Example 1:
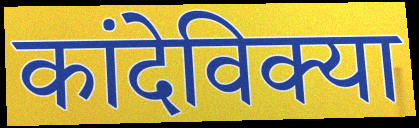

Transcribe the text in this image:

कांदेविक्या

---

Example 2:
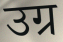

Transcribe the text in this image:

उग्र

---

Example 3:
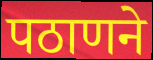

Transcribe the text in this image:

पठाणने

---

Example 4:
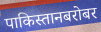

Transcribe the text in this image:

पाकिस्तानबरोबर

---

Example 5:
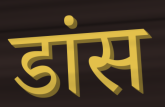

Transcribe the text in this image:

डांस